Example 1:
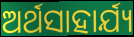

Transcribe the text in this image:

ଅର୍ଥସାହାର୍ଯ୍ୟ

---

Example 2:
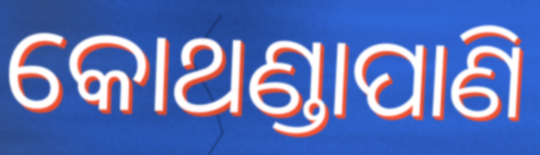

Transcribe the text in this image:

କୋଥଣ୍ଡାପାଣି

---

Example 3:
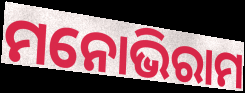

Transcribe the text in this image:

ମନୋଭିରାମ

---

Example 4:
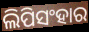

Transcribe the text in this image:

ଲିପିସଂହାର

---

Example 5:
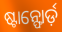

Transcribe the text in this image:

ଷ୍ଟାନ୍ଫୋର୍ଡ଼